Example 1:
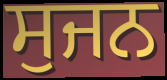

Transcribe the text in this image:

ਸੁਜਨ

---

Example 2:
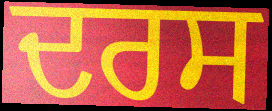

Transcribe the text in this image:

ਦਰਸ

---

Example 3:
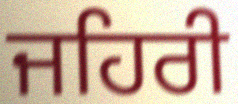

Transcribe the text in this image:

ਜਹਿਰੀ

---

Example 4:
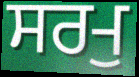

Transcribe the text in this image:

ਸਰ੍ਮੁ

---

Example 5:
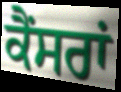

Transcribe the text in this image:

ਕੈਂਸਰਾਂ